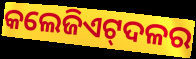
କଲେଜିଏଟ୍‍ଦଳର